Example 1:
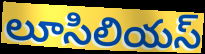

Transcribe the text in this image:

లూసిలియస్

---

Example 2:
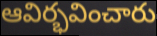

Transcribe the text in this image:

ఆవిర్భవించారు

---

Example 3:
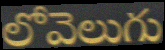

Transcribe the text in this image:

లోవెలుగు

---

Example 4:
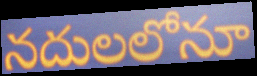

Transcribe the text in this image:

నదులలోనూ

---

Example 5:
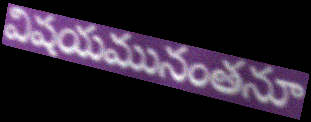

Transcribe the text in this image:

విషయమునంతనూ